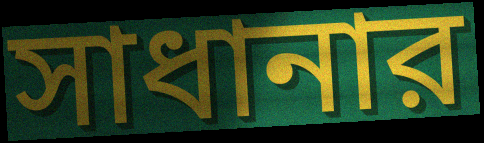
সাধানার